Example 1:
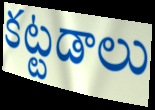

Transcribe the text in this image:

కట్టడాలు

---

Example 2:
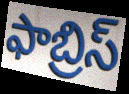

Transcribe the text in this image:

ఫాబ్రిస్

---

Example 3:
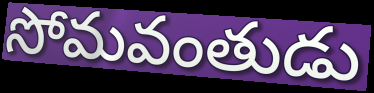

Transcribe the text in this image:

సోమవంతుడు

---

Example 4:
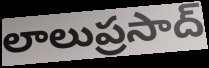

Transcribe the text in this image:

లాలుప్రసాద్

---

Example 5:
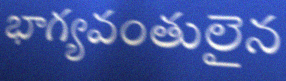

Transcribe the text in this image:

భాగ్యవంతులైన